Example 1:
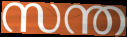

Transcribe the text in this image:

സന്ത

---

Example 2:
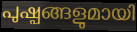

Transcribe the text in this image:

പുഷ്പങ്ങളുമായി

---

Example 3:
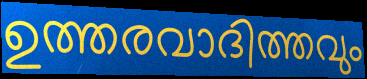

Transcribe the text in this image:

ഉത്തരവാദിത്തവും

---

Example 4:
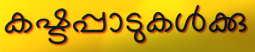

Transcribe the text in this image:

കഷ്ടപ്പാടുകൾക്കു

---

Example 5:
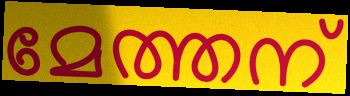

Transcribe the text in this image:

മേത്തന്